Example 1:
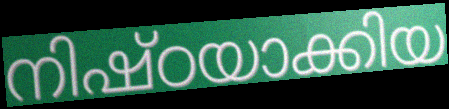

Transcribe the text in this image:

നിഷ്ഠയാക്കിയ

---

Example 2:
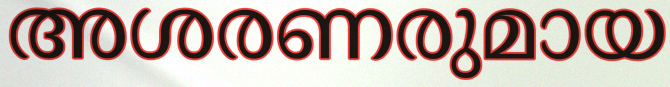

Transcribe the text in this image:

അശരണരുമായ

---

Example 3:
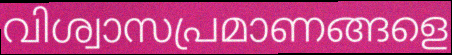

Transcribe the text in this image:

വിശ്വാസപ്രമാണങ്ങളെ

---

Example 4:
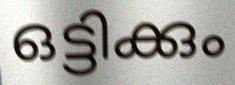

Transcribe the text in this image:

ഒട്ടിക്കും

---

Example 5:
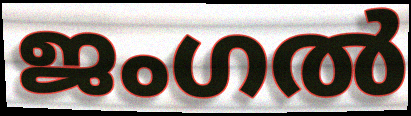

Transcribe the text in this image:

ജംഗൽ